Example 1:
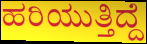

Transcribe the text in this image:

ಹರಿಯುತ್ತಿದ್ದೆ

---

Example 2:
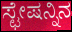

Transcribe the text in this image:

ಸ್ಟೇಷನ್ನಿನ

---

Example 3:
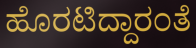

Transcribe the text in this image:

ಹೊರಟಿದ್ದಾರಂತೆ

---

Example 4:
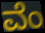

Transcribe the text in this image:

ವೆಂ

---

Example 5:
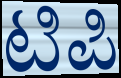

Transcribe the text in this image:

ಟಿಪಿ